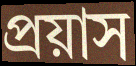
প্রয়াস